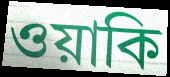
ওয়াকি